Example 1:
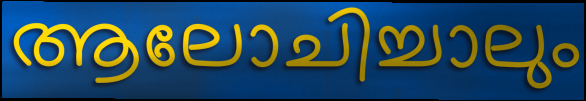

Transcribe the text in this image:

ആലോചിച്ചാലും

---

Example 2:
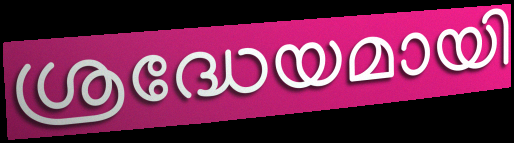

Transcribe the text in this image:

ശ്രദ്ധേയമായി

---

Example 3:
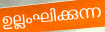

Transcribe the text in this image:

ഉല്ലംഘിക്കുന്ന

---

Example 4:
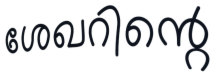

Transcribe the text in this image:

ശേഖറിന്റെ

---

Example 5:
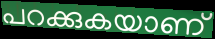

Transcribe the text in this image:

പറക്കുകയാണ്